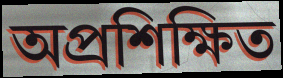
অপ্রশিক্ষিত